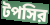
টপসির